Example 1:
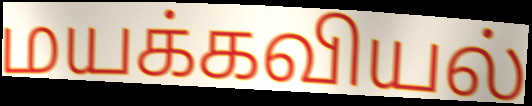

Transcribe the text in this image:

மயக்கவியல்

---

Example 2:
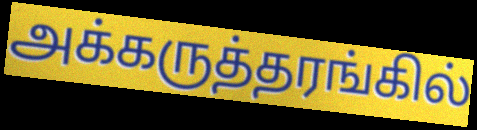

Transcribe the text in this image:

அக்கருத்தரங்கில்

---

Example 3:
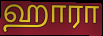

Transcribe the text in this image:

ஹாரா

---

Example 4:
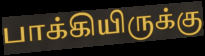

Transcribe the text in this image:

பாக்கியிருக்கு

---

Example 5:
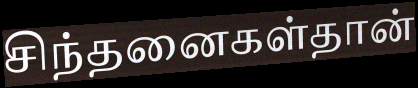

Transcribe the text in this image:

சிந்தனைகள்தான்